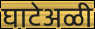
घाटेअळी